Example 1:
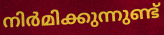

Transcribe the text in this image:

നിർമിക്കുന്നുണ്ട്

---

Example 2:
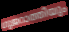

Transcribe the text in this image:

ഗുജറാത്തിയും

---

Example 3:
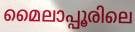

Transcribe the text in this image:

മൈലാപ്പൂരിലെ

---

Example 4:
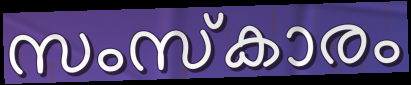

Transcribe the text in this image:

സംസ്കാരം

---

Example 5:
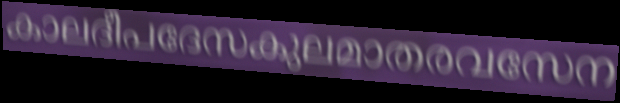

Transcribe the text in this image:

കാലദീപദേസകുലമാതരവസേന